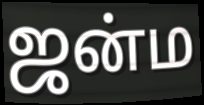
ஜன்ம